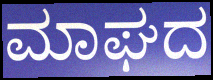
ಮಾಘದ